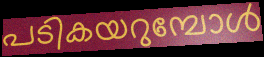
പടികയറുമ്പോൾ